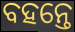
ବହନ୍ତେ